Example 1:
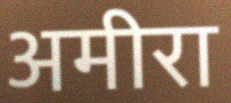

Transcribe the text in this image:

अमीरा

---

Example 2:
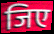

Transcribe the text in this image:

जिए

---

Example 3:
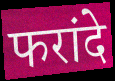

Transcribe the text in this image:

फरांदे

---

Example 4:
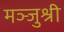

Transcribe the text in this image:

मञ्जुश्री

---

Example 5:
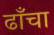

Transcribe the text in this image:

ढाँचा